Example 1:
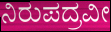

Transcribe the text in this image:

ನಿರುಪದ್ರವೀ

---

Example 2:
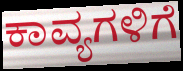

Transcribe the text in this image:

ಕಾವ್ಯಗಳಿಗೆ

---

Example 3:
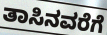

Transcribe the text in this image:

ತಾಸಿನವರೆಗೆ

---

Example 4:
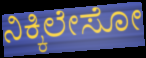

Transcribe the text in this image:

ನಿಕ್ಕಿಲೇಸೋ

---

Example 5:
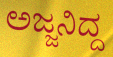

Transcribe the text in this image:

ಅಜ್ಜನಿದ್ದ